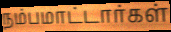
நம்பமாட்டார்கள்